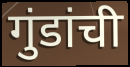
गुंडांची